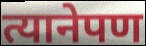
त्यानेपण